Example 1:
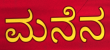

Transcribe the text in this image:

ಮನೆನ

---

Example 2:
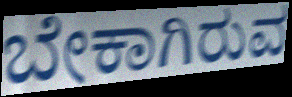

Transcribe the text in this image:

ಬೇಕಾಗಿರುವ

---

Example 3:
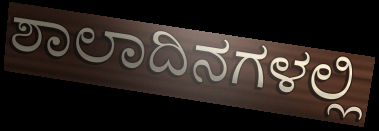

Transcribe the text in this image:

ಶಾಲಾದಿನಗಳಲ್ಲಿ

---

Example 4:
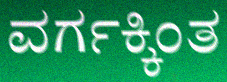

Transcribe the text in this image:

ವರ್ಗಕ್ಕಿಂತ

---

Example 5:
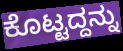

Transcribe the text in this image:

ಕೊಟ್ಟದ್ದನ್ನು